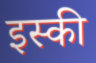
इस्की